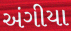
અંગીયા